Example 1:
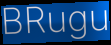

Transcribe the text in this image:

BRugu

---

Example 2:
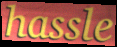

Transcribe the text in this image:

hassle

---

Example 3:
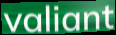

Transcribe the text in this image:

valiant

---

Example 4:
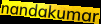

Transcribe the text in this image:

nandakumar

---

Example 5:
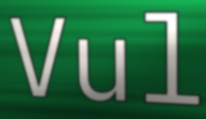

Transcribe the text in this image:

Vul